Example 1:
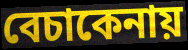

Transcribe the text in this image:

বেচাকেনায়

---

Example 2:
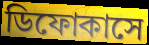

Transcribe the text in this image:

ডিফোকাসে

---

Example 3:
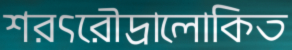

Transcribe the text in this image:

শরৎরৌদ্রালোকিত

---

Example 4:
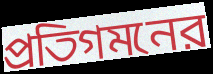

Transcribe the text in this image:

প্রতিগমনের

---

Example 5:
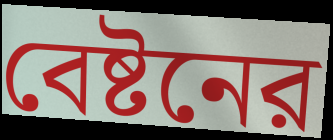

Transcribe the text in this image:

বেষ্টনের